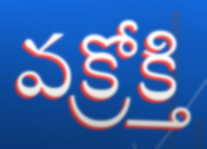
వక్రోక్తి